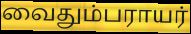
வைதும்பராயர்